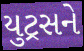
યુટ્રસને